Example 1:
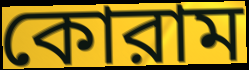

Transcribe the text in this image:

কোরাম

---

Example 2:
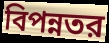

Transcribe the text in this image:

বিপন্নতর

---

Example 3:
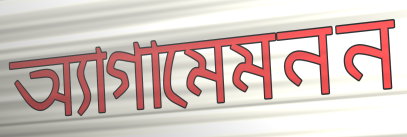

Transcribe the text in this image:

অ্যাগামেমনন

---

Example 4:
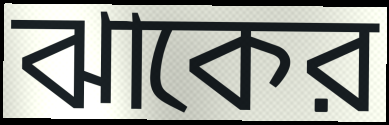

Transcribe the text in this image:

ঝাকের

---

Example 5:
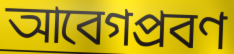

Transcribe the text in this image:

আবেগপ্রবণ